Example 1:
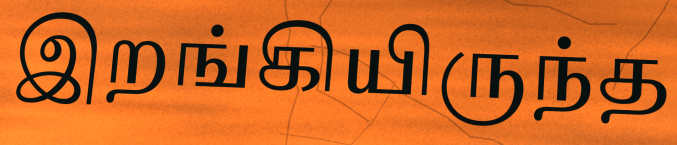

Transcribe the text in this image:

இறங்கியிருந்த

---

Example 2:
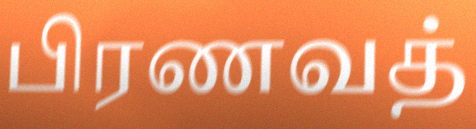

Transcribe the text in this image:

பிரணவத்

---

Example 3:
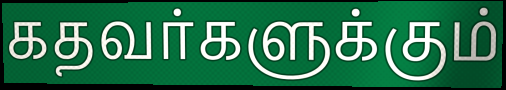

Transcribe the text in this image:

கதவர்களுக்கும்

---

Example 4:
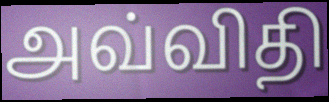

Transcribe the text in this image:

அவ்விதி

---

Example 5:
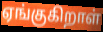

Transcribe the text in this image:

ஏங்குகிறாள்